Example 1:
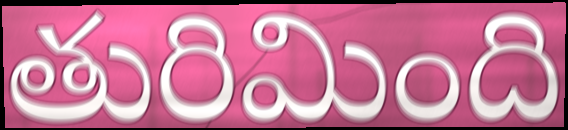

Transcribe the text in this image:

తురిమింది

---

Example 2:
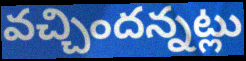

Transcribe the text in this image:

వచ్చిందన్నట్లు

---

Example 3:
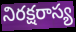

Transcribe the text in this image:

నిరక్షరాస్య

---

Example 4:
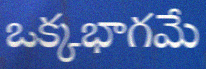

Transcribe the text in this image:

ఒక్కభాగమే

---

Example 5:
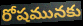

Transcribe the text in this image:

రోషమునకు